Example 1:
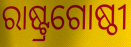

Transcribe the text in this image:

ରାଷ୍ଟ୍ରଗୋଷ୍ଠୀ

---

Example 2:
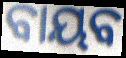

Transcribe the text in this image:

ବାୟବ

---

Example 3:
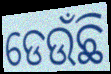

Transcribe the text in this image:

ଡେଉଁଛି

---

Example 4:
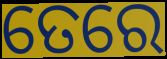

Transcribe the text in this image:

ତେରେ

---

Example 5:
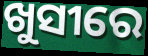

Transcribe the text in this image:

ଖୁସୀରେ